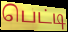
பெட்டி